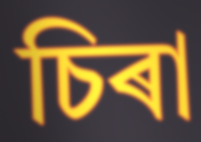
চিৰা